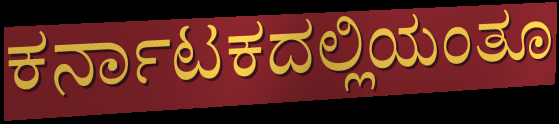
ಕರ್ನಾಟಕದಲ್ಲಿಯಂತೂ